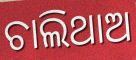
ଚାଲିଥାଅ